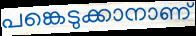
പങ്കെടുക്കാനാണ്